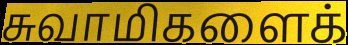
சுவாமிகளைக்